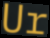
Ur